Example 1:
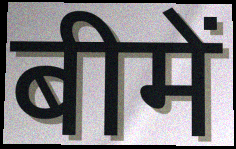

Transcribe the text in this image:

बीमें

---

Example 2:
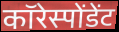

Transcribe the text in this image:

कॉरेस्पोंडेंट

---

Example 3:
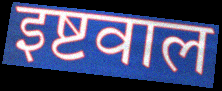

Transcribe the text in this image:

इष्टवाल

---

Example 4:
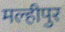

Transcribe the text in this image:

मल्हीपुर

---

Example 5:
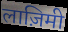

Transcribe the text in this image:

लाज़िमी